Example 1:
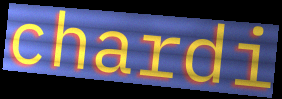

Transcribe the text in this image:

chardi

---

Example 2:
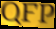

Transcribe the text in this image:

QFP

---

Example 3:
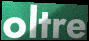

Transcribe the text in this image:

oltre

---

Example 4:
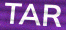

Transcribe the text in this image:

TAR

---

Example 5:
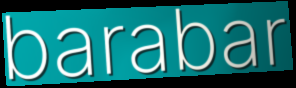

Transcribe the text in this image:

barabar